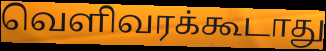
வெளிவரக்கூடாது